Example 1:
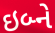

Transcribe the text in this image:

ઇબ્ને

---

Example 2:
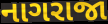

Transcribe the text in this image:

નાગરાજા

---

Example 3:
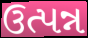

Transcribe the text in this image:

ઉત્પન્ન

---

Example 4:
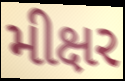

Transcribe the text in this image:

મીક્ષર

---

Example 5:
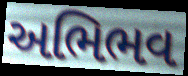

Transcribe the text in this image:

અભિભવ